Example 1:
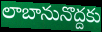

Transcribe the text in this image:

లాబానునొద్దకు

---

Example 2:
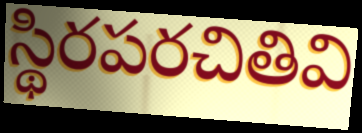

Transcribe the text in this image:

స్థిరపరచితివి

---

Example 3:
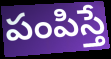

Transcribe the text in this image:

పంపిస్తే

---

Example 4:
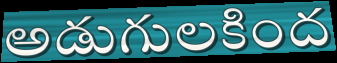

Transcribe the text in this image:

అడుగులకింద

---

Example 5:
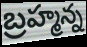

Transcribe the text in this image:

బ్రహ్మన్న